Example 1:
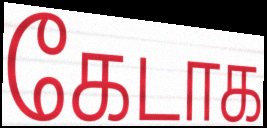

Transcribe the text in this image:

கேடாக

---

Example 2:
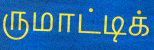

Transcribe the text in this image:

ருமாட்டிக்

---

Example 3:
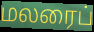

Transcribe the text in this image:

மலரைப்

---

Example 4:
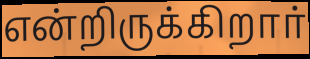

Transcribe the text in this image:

என்றிருக்கிறார்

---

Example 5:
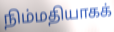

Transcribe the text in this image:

நிம்மதியாகக்